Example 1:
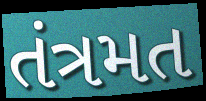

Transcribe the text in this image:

તંત્રમત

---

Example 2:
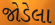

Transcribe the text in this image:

જોડેલા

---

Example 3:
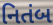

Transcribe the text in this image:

નિતંબ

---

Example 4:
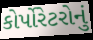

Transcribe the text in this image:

કોર્પોરેટરોનું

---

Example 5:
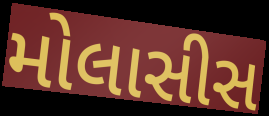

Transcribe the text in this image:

મોલાસીસ